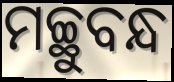
ମଚ୍ଛୁବନ୍ଧ